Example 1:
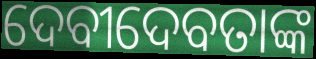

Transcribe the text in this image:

ଦେବୀଦେବତାଙ୍କ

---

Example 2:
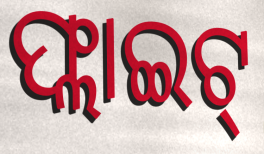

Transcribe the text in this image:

ଫ୍ଲାଇଟ୍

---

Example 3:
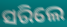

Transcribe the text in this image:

ସରିଲେ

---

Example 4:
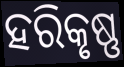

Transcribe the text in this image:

ହରିକୃଷ୍ଣ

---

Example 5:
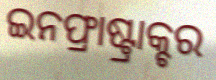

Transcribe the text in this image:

ଇନଫ୍ରାଷ୍ଟ୍ରାକ୍ଚର